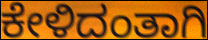
ಕೇಳಿದಂತಾಗಿ